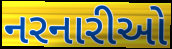
નરનારીઓ